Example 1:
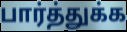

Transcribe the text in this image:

பார்த்துக்க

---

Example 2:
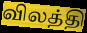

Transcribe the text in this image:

விலத்தி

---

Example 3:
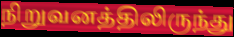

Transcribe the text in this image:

நிறுவனத்திலிருந்து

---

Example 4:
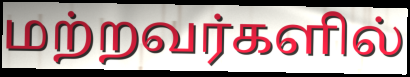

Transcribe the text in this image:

மற்றவர்களில்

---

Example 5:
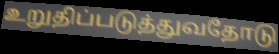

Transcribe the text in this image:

உறுதிப்படுத்துவதோடு